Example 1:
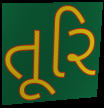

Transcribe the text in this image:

તૂરિ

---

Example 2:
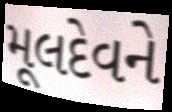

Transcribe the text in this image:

મૂલદેવને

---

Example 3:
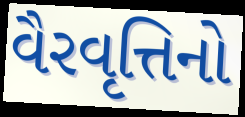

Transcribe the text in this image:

વૈરવૃત્તિનો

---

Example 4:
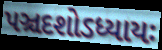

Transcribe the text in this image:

પઞ્ચદશોઽધ્યાયઃ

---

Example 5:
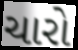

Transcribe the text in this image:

ચારો